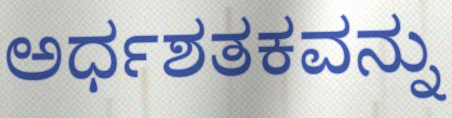
ಅರ್ಧಶತಕವನ್ನು